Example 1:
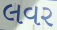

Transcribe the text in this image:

લવર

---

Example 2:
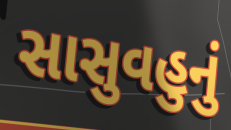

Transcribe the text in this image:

સાસુવહુનું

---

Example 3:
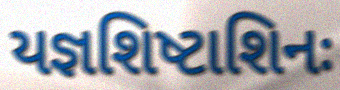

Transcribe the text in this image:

યજ્ઞશિષ્ટાશિનઃ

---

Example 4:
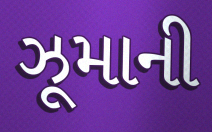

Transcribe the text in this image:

ઝૂમાની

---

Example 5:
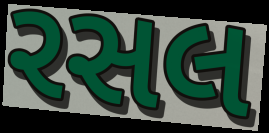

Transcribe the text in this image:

રસલ